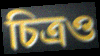
চিত্ৰও